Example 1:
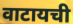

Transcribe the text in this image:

वाटायची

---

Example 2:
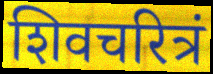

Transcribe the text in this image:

शिवचरित्रं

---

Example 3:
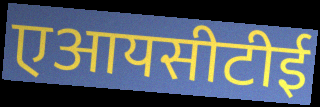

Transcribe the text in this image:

एआयसीटीई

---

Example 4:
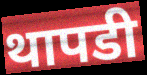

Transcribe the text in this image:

थापडी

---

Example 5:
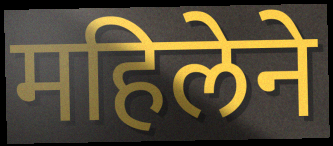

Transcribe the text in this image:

महिलेने